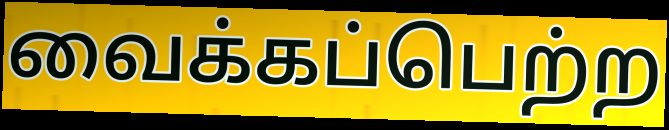
வைக்கப்பெற்ற